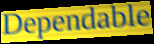
Dependable